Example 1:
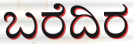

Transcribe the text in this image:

ಬರೆದಿರ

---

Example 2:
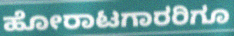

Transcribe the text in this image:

ಹೋರಾಟಗಾರರಿಗೂ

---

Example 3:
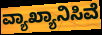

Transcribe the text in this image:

ವ್ಯಾಖ್ಯಾನಿಸಿವೆ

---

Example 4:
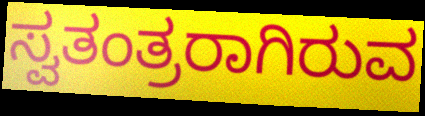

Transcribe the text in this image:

ಸ್ವತಂತ್ರರಾಗಿರುವ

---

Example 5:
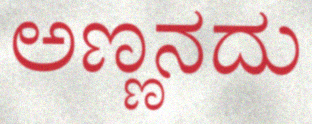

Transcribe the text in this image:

ಅಣ್ಣನದು